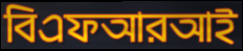
বিএফআরআই